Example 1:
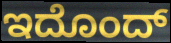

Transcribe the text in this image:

ಇದೊಂದ್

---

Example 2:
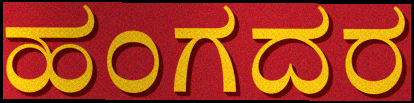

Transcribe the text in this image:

ಹಂಗದರ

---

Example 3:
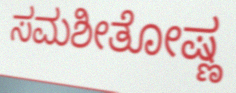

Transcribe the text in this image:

ಸಮಶೀತೋಷ್ಣ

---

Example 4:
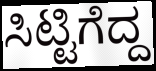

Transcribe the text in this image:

ಸಿಟ್ಟಿಗೆದ್ದ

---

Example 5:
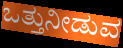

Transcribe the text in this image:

ಒತ್ತುನೀಡುವ